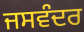
ਜਸਵੰਦਰ